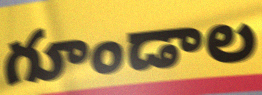
గూండాల